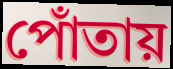
পোঁতায়